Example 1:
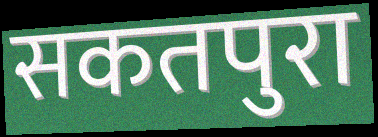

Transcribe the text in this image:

सकतपुरा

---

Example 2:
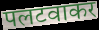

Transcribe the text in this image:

पलटवाकर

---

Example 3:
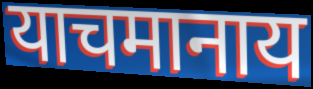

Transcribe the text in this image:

याचमानाय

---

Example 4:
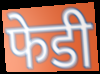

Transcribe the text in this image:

फेडी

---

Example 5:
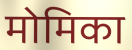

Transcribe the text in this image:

मोमिका